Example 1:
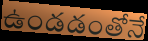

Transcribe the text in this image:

ఉండడంతోనే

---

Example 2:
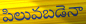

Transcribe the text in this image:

పిలువబడెనా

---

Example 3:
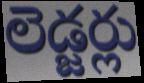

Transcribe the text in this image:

లెడ్జర్లు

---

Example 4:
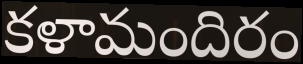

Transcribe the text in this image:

కళామందిరం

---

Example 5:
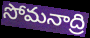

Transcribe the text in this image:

సోమనాద్రి